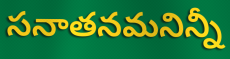
సనాతనమనిన్నీ